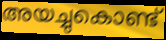
അയച്ചുകൊണ്ട്